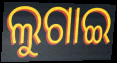
ଲୁଗାଇ